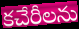
కచేరీలను